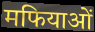
मफियाओं